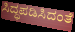
ಸಿದ್ಧಪಡಿಸಿದಂತೆ